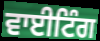
ਵਾਈਟਿੰਗ